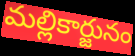
మల్లికార్జునం